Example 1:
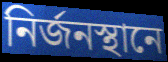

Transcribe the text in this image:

নির্জনস্থানে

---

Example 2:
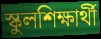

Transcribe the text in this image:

স্কুলশিক্ষার্থী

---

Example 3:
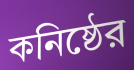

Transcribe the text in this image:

কনিষ্ঠের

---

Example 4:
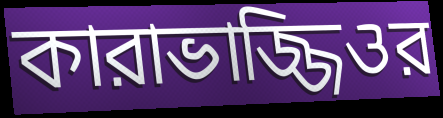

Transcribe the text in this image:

কারাভাজ্জিওর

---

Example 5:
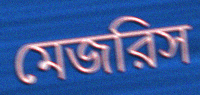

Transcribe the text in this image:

মেজরিস